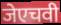
जेएचवी